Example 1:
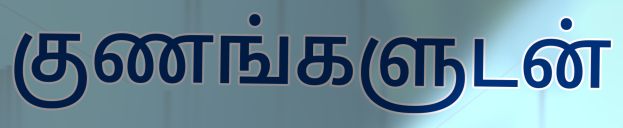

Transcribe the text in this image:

குணங்களுடன்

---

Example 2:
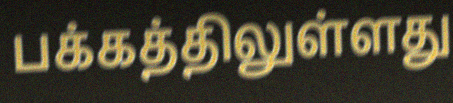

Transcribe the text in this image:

பக்கத்திலுள்ளது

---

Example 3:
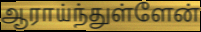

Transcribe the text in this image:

ஆராய்ந்துள்ளேன்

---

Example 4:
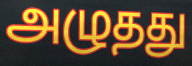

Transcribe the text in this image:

அழுதது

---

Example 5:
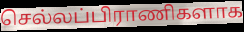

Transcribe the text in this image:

செல்லப்பிராணிகளாக